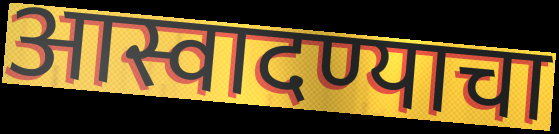
आस्वादण्याचा